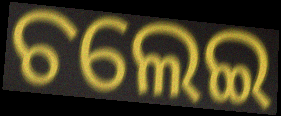
ଚଲେଇ